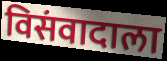
विसंवादाला